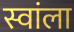
स्वांला